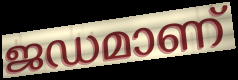
ജഡമാണ്